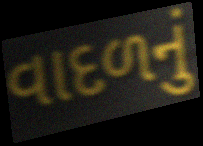
વાદળનું